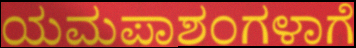
ಯಮಪಾಶಂಗಳಾಗೆ